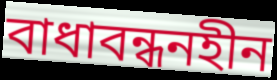
বাধাবন্ধনহীন